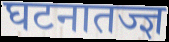
घटनातज्ज्ञ